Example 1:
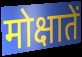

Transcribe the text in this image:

मोक्षातें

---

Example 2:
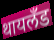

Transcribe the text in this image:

थायलँड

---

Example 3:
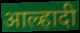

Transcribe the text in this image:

आल्हादी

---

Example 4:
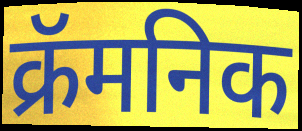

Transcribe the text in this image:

क्रॅमनिक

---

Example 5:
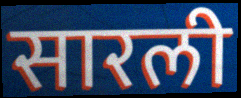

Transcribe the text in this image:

सारली